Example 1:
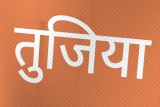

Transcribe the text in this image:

तुजिया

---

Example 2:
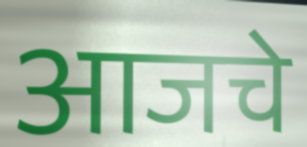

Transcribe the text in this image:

आजचे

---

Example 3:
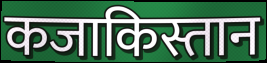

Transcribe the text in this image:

कजाकिस्तान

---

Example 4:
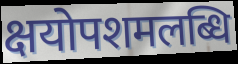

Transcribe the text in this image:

क्षयोपशमलब्धि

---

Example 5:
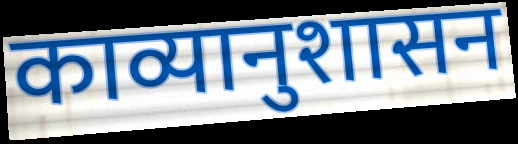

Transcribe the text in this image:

काव्यानुशासन